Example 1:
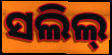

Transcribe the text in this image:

ସଲିଲ୍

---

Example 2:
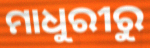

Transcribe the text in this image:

ମାଧୁରୀରୁ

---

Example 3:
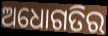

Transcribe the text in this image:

ଅଧୋଗତିର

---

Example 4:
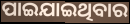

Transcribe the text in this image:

ପାଇଯାଇଥିବାର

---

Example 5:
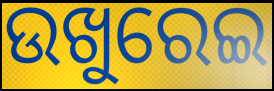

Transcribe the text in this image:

ଉଖୁରେଇ